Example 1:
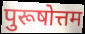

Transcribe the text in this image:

पुरूषोत्तम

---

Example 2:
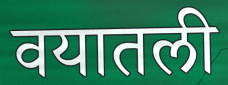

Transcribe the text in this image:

वयातली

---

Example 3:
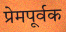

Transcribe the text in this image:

प्रेमपूर्वक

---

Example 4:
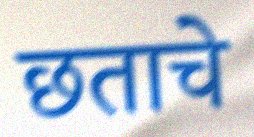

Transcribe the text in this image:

छताचे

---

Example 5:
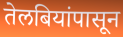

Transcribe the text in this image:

तेलबियांपासून